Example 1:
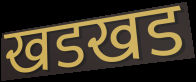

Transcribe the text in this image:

खडखड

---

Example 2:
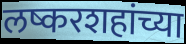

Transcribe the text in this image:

लष्करशहांच्या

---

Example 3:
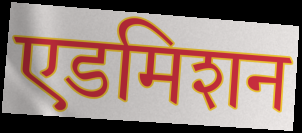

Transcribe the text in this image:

एडमिशन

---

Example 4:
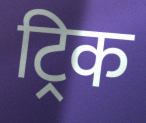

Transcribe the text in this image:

ट्रिक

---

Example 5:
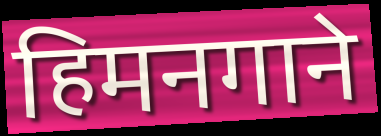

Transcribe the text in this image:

हिमनगाने